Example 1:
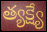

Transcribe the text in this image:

త్యక్ష్యే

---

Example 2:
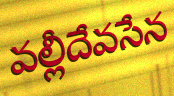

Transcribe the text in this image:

వల్లీదేవసేన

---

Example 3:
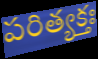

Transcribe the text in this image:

పరిత్యక్తః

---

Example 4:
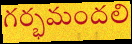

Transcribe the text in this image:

గర్భమందలి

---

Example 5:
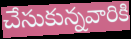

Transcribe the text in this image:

చేసుకున్నవారికి